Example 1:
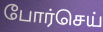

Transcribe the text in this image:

போர்செய்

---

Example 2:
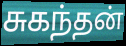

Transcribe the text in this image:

சுகந்தன்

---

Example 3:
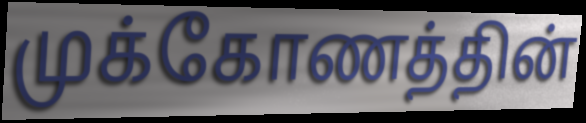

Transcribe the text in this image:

முக்கோணத்தின்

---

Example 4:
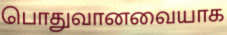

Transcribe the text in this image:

பொதுவானவையாக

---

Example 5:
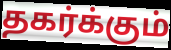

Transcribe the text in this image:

தகர்க்கும்